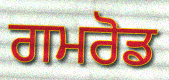
ਗਮਰੋਡ